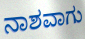
ನಾಶವಾಗು